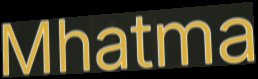
Mhatma